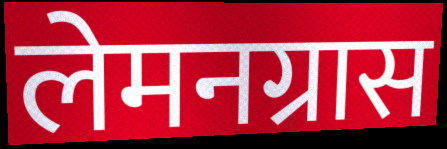
लेमनग्रास